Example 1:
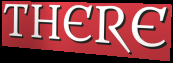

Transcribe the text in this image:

THERE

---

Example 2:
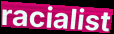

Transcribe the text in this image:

racialist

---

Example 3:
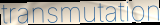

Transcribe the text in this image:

transmutation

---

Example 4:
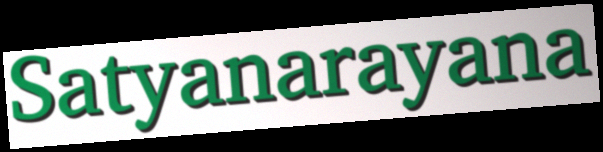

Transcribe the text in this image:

Satyanarayana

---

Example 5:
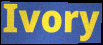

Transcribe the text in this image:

Ivory